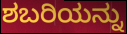
ಶಬರಿಯನ್ನು